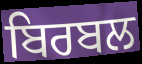
ਬਿਰਬਲ